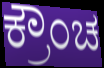
ಕ್ರೌಂಚ